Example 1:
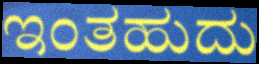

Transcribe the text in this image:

ಇಂತಹುದು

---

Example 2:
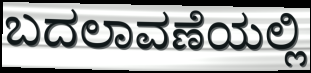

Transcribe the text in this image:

ಬದಲಾವಣೆಯಲ್ಲಿ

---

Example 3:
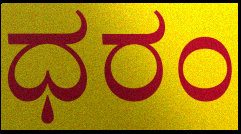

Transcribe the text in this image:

ಧರಂ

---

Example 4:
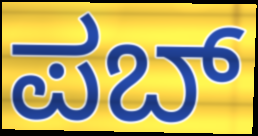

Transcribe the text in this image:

ಪಬ್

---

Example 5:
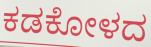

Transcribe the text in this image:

ಕಡಕೋಳದ